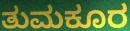
ತುಮಕೂರ